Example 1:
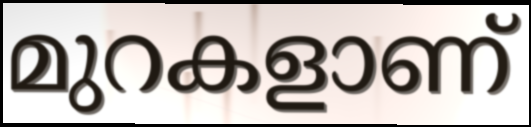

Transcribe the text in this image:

മുറകളാണ്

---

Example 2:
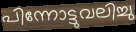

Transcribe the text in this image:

പിന്നോട്ടുവലിച്ചു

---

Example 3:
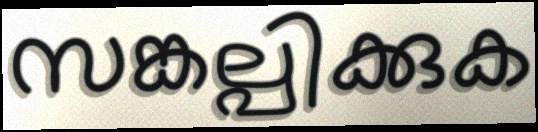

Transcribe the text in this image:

സങ്കല്പിക്കുക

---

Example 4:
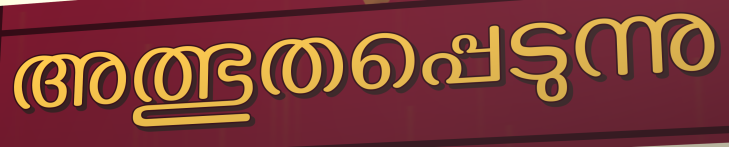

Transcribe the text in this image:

അത്ഭുതപ്പെടുന്നു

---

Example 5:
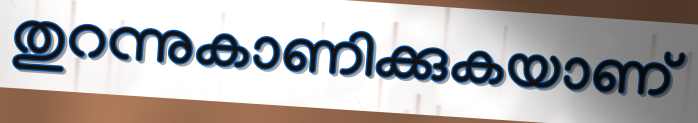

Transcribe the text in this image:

തുറന്നുകാണിക്കുകയാണ്